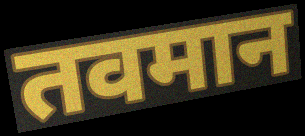
तवमान